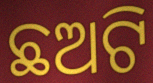
ଛଅଟି